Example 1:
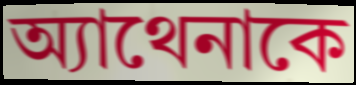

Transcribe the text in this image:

অ্যাথেনাকে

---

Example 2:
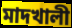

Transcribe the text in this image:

মাদখালী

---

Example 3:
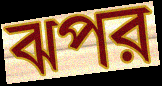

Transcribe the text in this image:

ঝপর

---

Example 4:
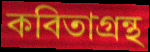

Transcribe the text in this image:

কবিতাগ্রন্থ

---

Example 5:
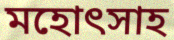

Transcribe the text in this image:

মহোৎসাহ